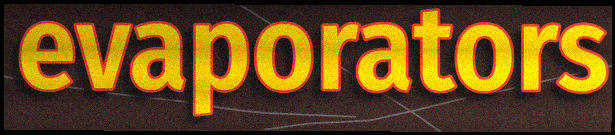
evaporators